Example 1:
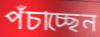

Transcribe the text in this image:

পঁচাচ্ছেন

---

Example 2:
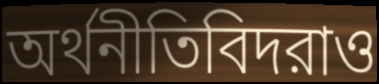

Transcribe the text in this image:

অর্থনীতিবিদরাও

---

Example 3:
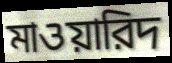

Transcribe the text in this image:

মাওয়ারিদ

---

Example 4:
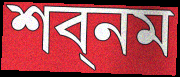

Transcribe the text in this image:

শব্নম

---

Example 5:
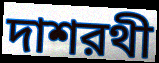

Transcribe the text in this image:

দাশরথী